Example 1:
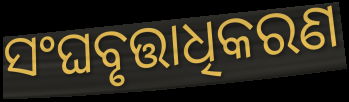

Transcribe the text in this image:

ସଂଘବୃତ୍ତାଧିକରଣ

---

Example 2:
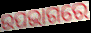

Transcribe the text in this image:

ଉପଭାଗରେ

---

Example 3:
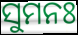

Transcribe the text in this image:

ସୁମନଃ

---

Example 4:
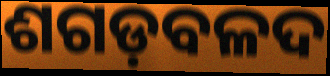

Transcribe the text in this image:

ଶଗଡ଼ବଳଦ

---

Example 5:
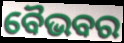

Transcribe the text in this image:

ବୈଭବର